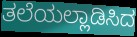
ತಲೆಯಲ್ಲಾಡಿಸಿದ